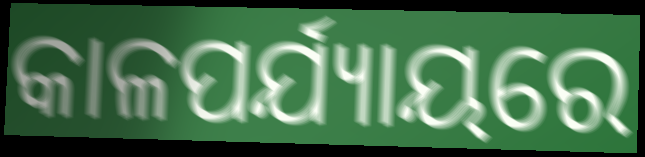
କାଳପର୍ଯ୍ୟାୟରେ